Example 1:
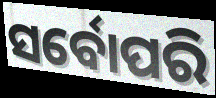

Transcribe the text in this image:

ସର୍ବୋପରି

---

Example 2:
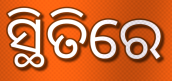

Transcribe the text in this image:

ସ୍ଥିତିରେ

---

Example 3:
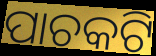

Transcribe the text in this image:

ପାଚକଟି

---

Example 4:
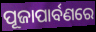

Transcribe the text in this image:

ପୂଜାପାର୍ବଣରେ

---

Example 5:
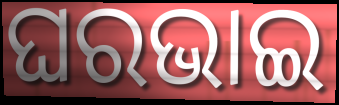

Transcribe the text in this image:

ଘରଭାଇ